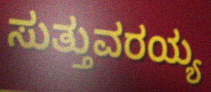
ಸುತ್ತುವರಯ್ಯ